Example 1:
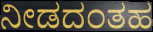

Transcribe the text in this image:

ನೀಡದಂತಹ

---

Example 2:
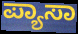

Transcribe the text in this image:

ಪ್ಯಾಸಾ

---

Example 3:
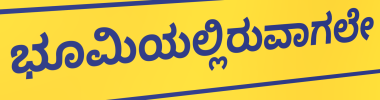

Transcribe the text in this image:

ಭೂಮಿಯಲ್ಲಿರುವಾಗಲೇ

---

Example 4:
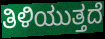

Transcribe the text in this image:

ತಿಳಿಯುತ್ತದೆ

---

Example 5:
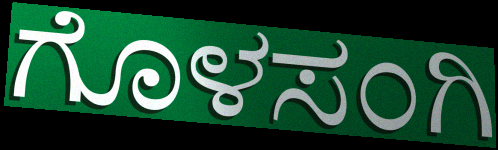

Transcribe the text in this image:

ಗೊಳಸಂಗಿ